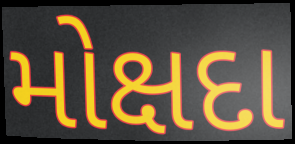
મોક્ષદા